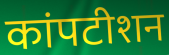
कांपटीशन